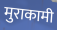
मुराकामी